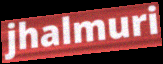
jhalmuri